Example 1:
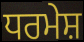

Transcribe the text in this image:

ਧਰਮੇਸ਼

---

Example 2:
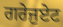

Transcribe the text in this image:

ਗਰੇਜੁਏਟ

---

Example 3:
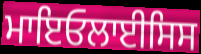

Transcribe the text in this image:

ਮਾਇਓਲਾਈਸਿਸ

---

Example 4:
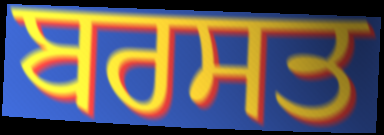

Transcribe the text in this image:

ਬਰਸਤ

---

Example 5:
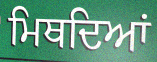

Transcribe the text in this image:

ਮਿਥਦਿਆਂ